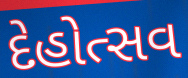
દેહોત્સવ